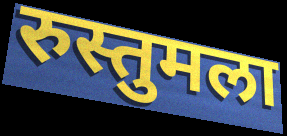
रुस्तुमला